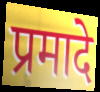
प्रमादे